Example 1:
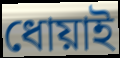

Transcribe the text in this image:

ধোয়াই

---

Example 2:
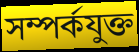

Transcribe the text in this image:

সম্পর্কযুক্ত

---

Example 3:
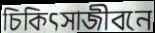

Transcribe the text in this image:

চিকিৎসাজীবনে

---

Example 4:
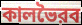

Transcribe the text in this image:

কালভৈরব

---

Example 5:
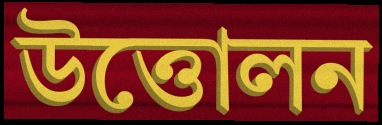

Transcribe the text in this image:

উত্তোলন